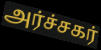
அர்ச்சகர்